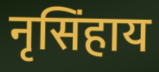
नृसिंहाय